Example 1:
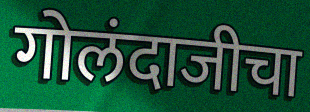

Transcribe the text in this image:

गोलंदाजीचा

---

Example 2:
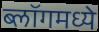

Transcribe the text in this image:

ब्लॉगमध्ये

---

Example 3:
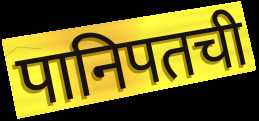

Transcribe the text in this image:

पानिपतची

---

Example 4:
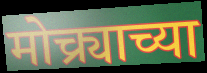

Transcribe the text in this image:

मोच्र्याच्या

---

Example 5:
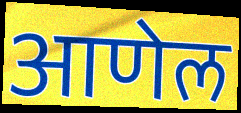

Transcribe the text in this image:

आणेल